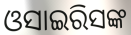
ଓସାଇରିସଙ୍କ